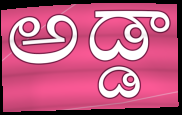
అడ్డా